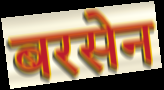
बरसेन